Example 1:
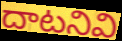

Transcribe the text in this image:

దాటనివి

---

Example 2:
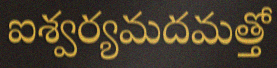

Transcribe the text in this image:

ఐశ్వర్యమదమత్తో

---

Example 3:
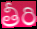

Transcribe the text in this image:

తీరి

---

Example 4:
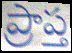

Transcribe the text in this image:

ప్రాప్త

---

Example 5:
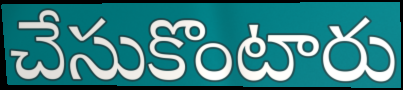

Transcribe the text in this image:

చేసుకొంటారు